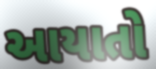
આયાતો